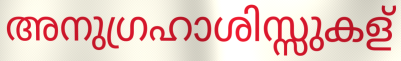
അനുഗ്രഹാശിസ്സുകള്